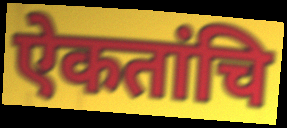
ऐकतांचि